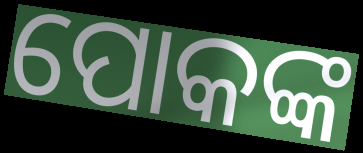
ପୋକଙ୍କ